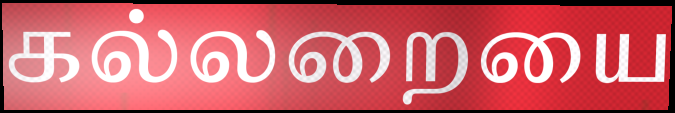
கல்லறையை